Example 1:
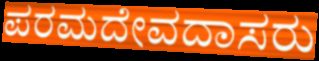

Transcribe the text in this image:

ಪರಮದೇವದಾಸರು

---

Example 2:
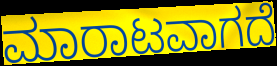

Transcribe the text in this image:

ಮಾರಾಟವಾಗದೆ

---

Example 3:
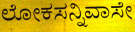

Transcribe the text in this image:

ಲೋಕಸನ್ನಿವಾಸೇ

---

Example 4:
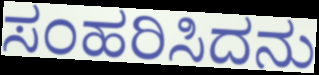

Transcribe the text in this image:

ಸಂಹರಿಸಿದನು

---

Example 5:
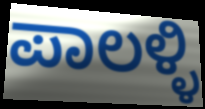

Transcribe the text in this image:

ಪಾಲಳ್ಳಿ